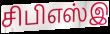
சிபிஎஸ்இ